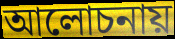
আলোচনায়